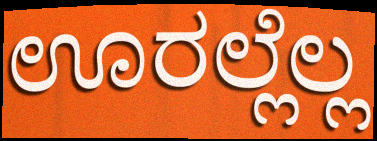
ಊರಲ್ಲೆಲ್ಲ